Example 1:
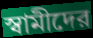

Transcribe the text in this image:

স্বামীদের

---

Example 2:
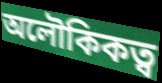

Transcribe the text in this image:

অলৌকিকত্ব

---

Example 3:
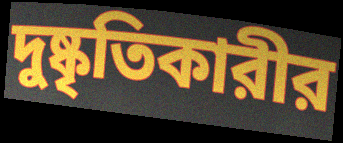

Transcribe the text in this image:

দুষ্কৃতিকারীর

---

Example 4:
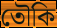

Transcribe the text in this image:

তৌকি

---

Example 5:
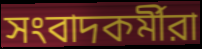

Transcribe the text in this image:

সংবাদকর্মীরা